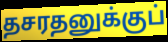
தசரதனுக்குப்